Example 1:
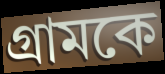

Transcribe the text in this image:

গ্রামকে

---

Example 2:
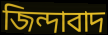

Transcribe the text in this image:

জিন্দাবাদ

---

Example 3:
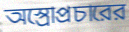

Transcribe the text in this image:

অস্ত্রোপ্রচারের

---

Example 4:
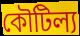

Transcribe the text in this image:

কৌটিল্য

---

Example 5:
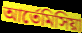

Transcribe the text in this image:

আর্তেমিসিয়া